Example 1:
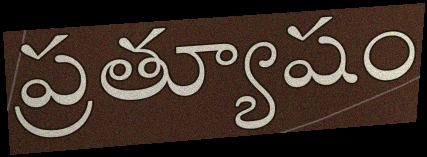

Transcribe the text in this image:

ప్రత్యూషం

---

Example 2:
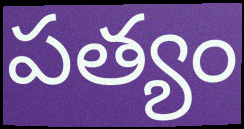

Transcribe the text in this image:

పత్యం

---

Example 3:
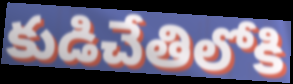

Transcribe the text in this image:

కుడిచేతిలోకి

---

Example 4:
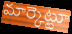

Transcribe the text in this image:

మార్కెట్టూ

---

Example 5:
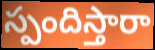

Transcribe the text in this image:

స్పందిస్తారా